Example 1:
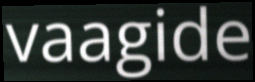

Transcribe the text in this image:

vaagide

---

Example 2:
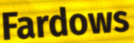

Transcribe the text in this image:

Fardows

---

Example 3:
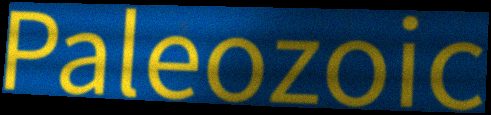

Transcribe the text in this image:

Paleozoic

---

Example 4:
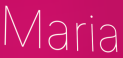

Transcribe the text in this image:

Maria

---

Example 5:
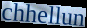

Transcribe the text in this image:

chhellun